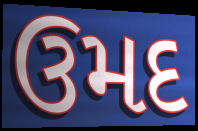
ઉમદ